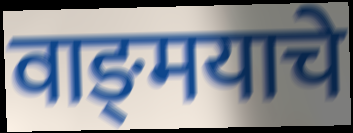
वाङ्‍मयाचे